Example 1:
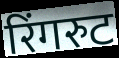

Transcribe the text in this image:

रिंगरुट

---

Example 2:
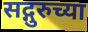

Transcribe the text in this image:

सद्गुरुच्या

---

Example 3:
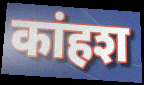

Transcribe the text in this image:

कांहश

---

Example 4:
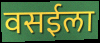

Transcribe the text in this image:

वसईला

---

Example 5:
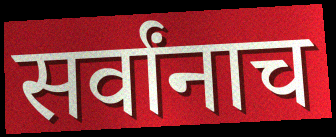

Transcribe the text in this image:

सर्वांनाच